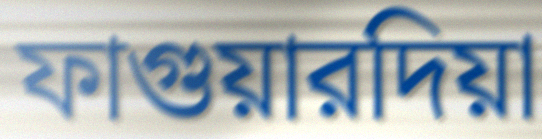
ফাগুয়ারদিয়া